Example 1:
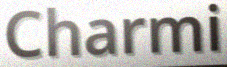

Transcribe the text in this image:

Charmi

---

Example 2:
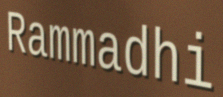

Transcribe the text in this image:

Rammadhi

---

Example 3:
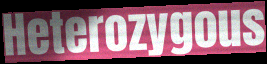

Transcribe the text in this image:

Heterozygous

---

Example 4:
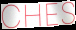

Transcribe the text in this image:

CHES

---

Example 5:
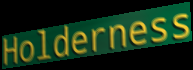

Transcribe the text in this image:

Holderness